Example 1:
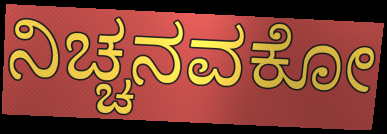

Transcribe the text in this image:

ನಿಚ್ಚನವಕೋ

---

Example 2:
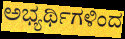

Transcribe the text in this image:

ಅಭ್ಯರ್ಥಿಗಳಿಂದ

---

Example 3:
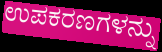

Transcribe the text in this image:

ಉಪಕರಣಗಳನ್ನು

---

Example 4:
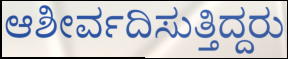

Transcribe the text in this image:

ಆಶೀರ್ವದಿಸುತ್ತಿದ್ದರು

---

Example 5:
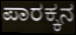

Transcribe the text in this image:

ಪಾರಕ್ಕನ